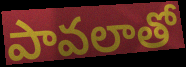
పావలాతో